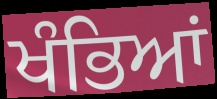
ਖੰਭਿਆਂ